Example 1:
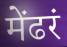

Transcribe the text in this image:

मेंढरं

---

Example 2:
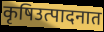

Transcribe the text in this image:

कृषिउत्पादनात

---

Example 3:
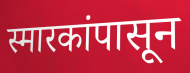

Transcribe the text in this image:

स्मारकांपासून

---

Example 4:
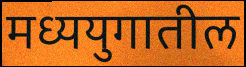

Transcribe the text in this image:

मध्ययुगातील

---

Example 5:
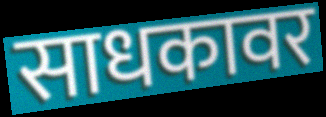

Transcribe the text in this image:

साधकावर